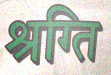
श्रग्ति